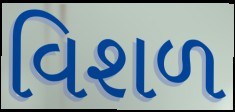
વિશળ